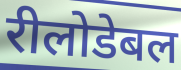
रीलोडेबल